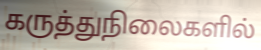
கருத்துநிலைகளில்